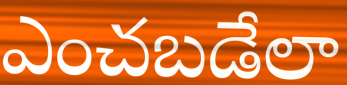
ఎంచబడేలా